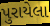
પુરાયેલા